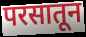
परसातून